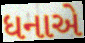
ધનાએ